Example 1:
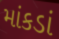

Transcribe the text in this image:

માંકડાં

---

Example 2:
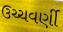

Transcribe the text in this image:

ઉચ્ચવર્ણી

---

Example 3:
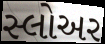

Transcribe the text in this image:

સ્લોઅર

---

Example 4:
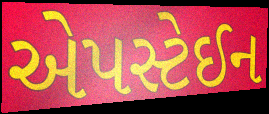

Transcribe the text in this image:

એપસ્ટેઈન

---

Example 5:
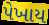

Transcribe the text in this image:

પેખાય